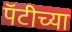
पॅटीच्या